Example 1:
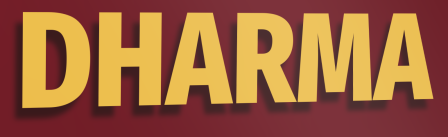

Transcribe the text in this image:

DHARMA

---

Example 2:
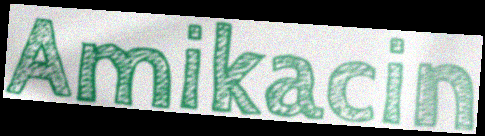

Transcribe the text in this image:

Amikacin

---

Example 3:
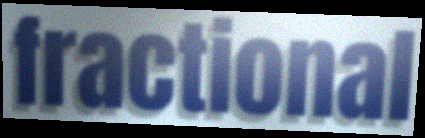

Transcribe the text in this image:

fractional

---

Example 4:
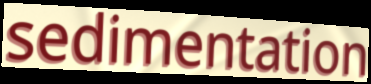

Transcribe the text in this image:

sedimentation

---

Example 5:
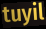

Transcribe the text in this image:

tuyil